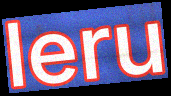
leru